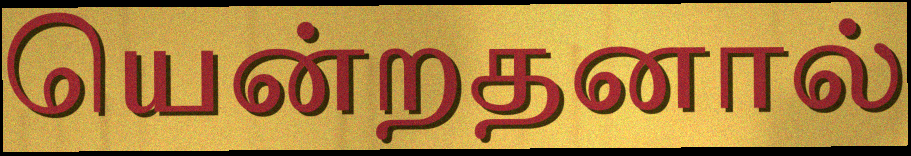
யென்றதனால்